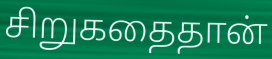
சிறுகதைதான்